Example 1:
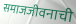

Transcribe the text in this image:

समाजजीवनाची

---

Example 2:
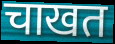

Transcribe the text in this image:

चाखत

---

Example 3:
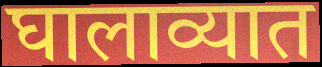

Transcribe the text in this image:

घालाव्यात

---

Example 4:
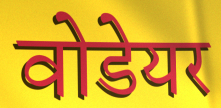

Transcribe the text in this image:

वोडेयर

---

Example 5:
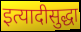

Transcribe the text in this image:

इत्यादीसुद्धा